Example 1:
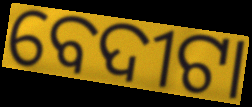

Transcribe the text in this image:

ବେଦୀଟା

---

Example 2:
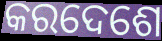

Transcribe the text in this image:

କରଦେଶେ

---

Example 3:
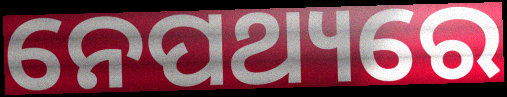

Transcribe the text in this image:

ନେପଥ୍ୟରେ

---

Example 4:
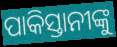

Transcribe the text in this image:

ପାକିସ୍ତାନୀଙ୍କୁ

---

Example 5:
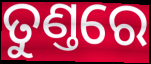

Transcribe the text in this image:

ତୁଣ୍ତରେ